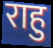
राहु